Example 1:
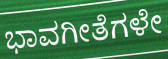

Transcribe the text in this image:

ಭಾವಗೀತೆಗಳೇ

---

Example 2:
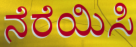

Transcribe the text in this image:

ನೆರೆಯಿಸಿ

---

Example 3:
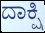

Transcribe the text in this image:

ದಾಕ್ಷಿ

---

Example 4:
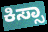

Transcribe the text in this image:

ಕಿಸ್ಸಾ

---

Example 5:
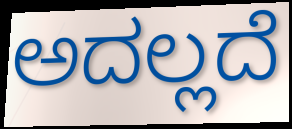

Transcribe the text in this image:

ಅದಲ್ಲದೆ